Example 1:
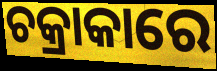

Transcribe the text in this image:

ଚକ୍ରାକାରେ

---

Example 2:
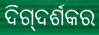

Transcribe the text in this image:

ଦିଗ୍‌ଦର୍ଶକର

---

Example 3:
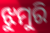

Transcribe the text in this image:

ଝୁମୁରି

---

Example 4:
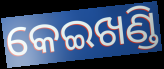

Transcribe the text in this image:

କେଇଖଣ୍ଡି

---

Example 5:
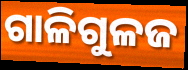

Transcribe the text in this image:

ଗାଳିଗୁଳଜ